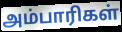
அம்பாரிகள்